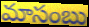
మాసంబు